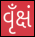
વૃઁક્ષં